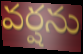
వర్షను